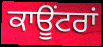
ਕਾਊਂਟਰਾਂ